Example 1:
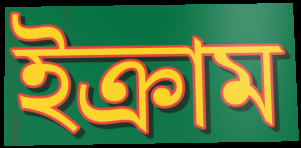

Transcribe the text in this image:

ইক্ৰাম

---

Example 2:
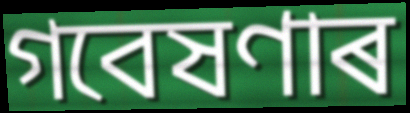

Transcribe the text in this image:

গবেষণাৰ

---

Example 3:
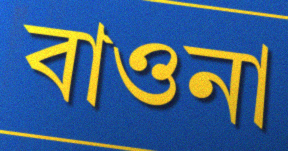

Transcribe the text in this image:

বাওনা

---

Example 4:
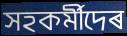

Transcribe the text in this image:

সহকৰ্মীদেৰ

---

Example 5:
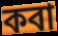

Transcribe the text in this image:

কবা